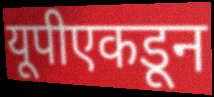
यूपीएकडून